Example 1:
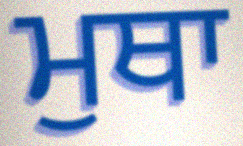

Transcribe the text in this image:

ਮੁਥਾ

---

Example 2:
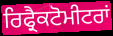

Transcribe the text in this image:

ਰਿਫ੍ਰੈਕਟੋਮੀਟਰਾਂ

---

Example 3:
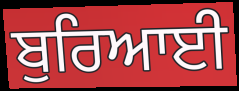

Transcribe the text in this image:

ਬੁਰਿਆਈ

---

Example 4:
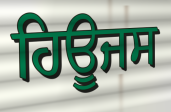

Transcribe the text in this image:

ਹਿਊਜਸ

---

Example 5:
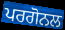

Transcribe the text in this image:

ਪਰਗੋਨਲ